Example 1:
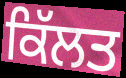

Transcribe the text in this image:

ਕਿੱਲਤ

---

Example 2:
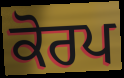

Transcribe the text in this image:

ਕੋਰਪ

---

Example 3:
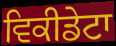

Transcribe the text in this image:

ਵਿਕੀਡੇਟਾ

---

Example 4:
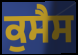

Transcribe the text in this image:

ਕੁਸੈਸ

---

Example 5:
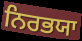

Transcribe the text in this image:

ਨਿਰਭਯਾ